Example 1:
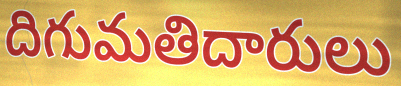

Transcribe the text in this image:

దిగుమతిదారులు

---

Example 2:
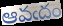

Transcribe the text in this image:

ఆవఁదం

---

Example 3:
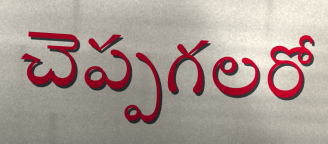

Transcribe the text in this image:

చెప్పగలరో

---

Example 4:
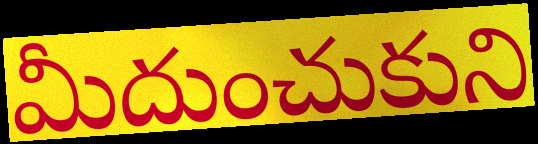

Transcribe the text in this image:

మీదుంచుకుని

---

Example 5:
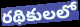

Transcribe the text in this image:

రథికులలో